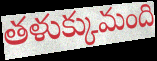
తళుక్కుమంది